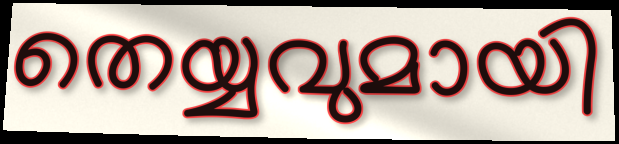
തെയ്യവുമായി